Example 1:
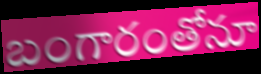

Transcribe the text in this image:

బంగారంతోనూ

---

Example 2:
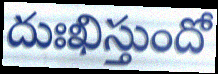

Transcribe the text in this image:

దుఃఖిస్తుందో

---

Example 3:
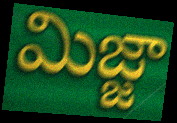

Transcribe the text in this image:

మిజ్జా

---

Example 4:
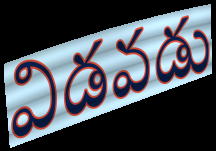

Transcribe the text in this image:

విడవడు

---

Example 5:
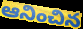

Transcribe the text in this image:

ఆనించిన